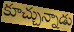
కూచ్చున్నాడు